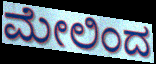
ಮೇಲಿಂದ